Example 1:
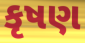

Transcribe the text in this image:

કૃષણ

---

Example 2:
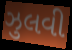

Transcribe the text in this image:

ઝુલવી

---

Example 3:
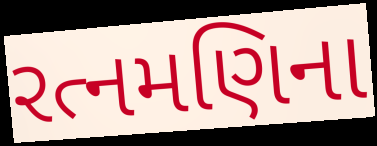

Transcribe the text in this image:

રત્નમણિના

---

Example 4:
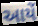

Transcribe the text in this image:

આયેં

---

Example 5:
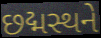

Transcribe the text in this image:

છદ્મસ્થને